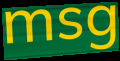
msg